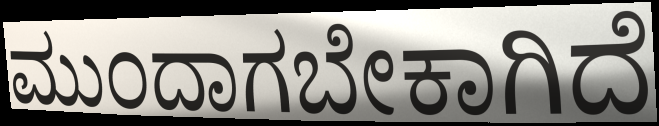
ಮುಂದಾಗಬೇಕಾಗಿದೆ